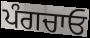
ਪੰਗਚਾਓ